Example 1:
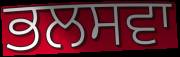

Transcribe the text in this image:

ਭਲਸਵਾ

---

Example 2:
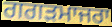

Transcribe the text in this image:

ਗਗੜਮਾਜਰਾ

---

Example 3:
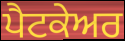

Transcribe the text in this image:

ਪੈਟਕੇਅਰ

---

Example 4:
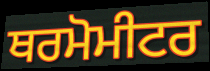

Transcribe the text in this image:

ਥਰਮੋਮੀਟਰ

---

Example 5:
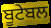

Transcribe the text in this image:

ਬੂਟੇਬਲ